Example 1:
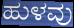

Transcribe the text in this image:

ಹುಳವು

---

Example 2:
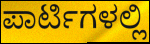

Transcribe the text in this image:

ಪಾರ್ಟಿಗಳಲ್ಲಿ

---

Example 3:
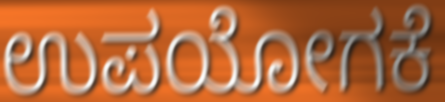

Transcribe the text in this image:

ಉಪಯೋಗಕೆ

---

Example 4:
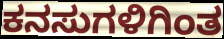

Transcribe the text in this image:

ಕನಸುಗಳಿಗಿಂತ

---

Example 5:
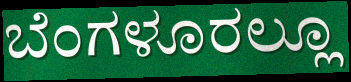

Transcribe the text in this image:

ಬೆಂಗಳೂರಲ್ಲೂ